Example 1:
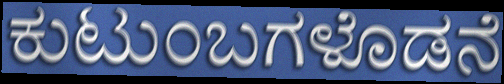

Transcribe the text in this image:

ಕುಟುಂಬಗಳೊಡನೆ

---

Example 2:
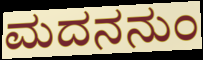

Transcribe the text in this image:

ಮದನನುಂ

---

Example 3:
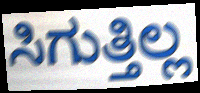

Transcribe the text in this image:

ಸಿಗುತ್ತಿಲ್ಲ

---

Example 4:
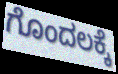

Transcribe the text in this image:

ಗೊಂದಲಕ್ಕೆ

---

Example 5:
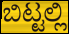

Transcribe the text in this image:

ಬಿಟ್ಟಲ್ಲಿ